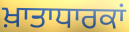
ਖ਼ਾਤਾਧਾਰਕਾਂ